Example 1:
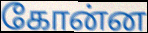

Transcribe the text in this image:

கோன்ன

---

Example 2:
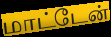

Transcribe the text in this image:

மாட்டேன்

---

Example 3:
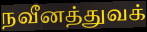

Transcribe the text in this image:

நவீனத்துவக்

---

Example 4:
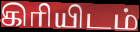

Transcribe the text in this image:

கிரியிடம்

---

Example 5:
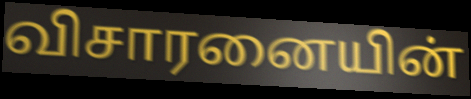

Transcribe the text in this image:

விசாரனையின்